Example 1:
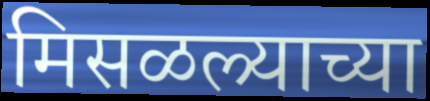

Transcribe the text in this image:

मिसळल्याच्या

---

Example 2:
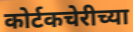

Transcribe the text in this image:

कोर्टकचेरीच्या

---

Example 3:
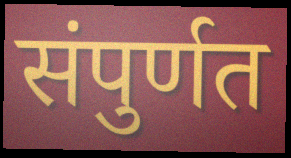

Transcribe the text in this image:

संपुर्णत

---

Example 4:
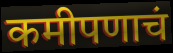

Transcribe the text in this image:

कमीपणाचं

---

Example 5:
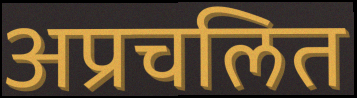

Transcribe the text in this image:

अप्रचलित